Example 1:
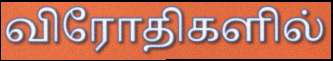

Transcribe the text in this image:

விரோதிகளில்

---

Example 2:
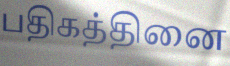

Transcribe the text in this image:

பதிகத்தினை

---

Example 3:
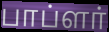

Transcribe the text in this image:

பாப்ளர்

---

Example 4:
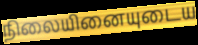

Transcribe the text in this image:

நிலையினையுடைய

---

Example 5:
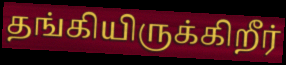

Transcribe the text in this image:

தங்கியிருக்கிறீர்